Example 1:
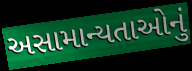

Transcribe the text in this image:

અસામાન્યતાઓનું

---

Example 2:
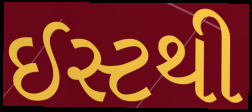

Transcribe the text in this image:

ઈસ્ટથી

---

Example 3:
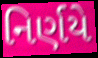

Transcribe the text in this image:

નિર્ણયે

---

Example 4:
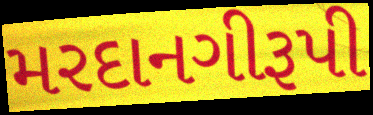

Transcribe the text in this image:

મરદાનગીરૂપી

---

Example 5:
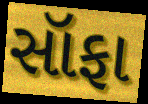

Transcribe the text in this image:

સૉફા